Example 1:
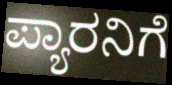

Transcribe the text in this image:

ಪ್ಯಾರನಿಗೆ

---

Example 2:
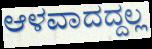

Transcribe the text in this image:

ಆಳವಾದದ್ದಲ್ಲ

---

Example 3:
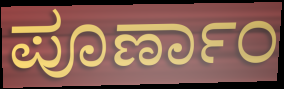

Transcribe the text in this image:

ಪೂರ್ಣಾಂ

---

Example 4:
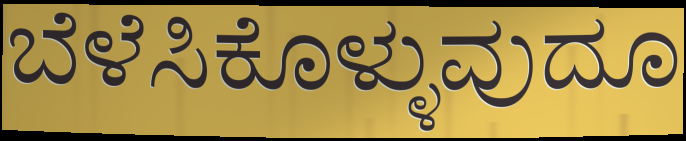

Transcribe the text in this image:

ಬೆಳೆಸಿಕೊಳ್ಳುವುದೂ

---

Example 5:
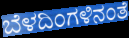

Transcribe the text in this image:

ಬೆಳದಿಂಗಳಿನಂತೆ